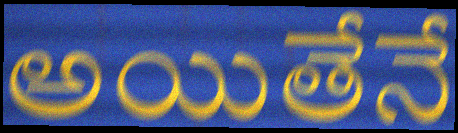
అయితేనే